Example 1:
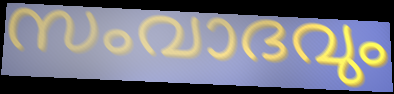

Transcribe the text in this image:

സംവാദവും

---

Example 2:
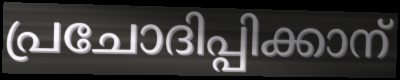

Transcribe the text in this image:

പ്രചോദിപ്പിക്കാന്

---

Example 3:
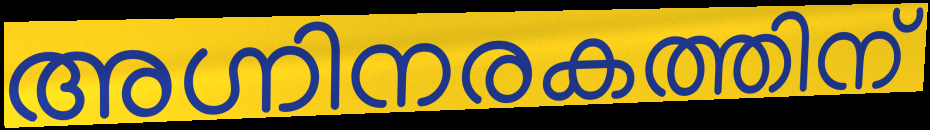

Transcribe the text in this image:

അഗ്നിനരകത്തിന്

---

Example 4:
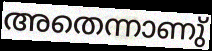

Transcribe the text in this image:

അതെന്നാണു്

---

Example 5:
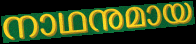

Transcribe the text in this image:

നാഥനുമായ